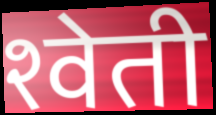
श्वेती